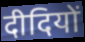
दीदियों